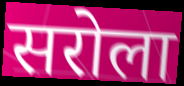
सरोला